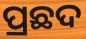
ପ୍ରଛଦ